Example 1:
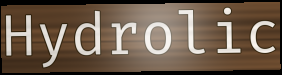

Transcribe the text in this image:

Hydrolic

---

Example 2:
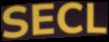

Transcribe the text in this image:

SECL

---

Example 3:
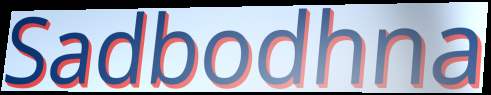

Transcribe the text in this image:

Sadbodhna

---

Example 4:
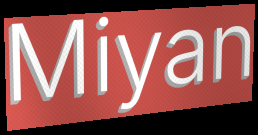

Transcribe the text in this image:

Miyan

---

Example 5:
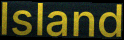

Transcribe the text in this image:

Island